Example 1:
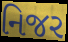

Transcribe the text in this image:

નિજર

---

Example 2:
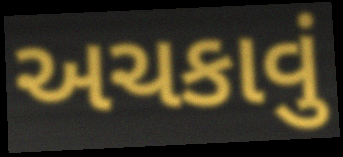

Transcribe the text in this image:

અચકાવું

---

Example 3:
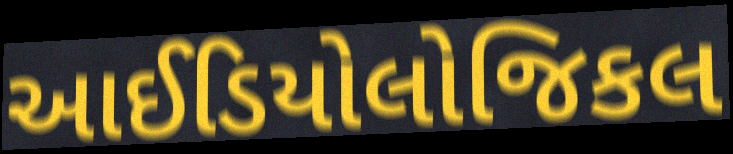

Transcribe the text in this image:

આઈડિયોલોજિકલ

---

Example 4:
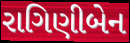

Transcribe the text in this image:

રાગિણીબેન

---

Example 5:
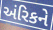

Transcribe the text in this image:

અંરિકને